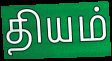
தியம்